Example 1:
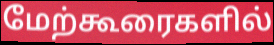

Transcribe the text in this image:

மேற்கூரைகளில்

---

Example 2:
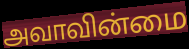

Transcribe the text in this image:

அவாவின்மை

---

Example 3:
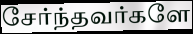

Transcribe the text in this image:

சேர்ந்தவர்களே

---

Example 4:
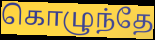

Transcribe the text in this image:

கொழுந்தே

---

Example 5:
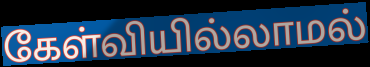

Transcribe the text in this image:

கேள்வியில்லாமல்